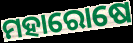
ମହାରୋଷେ